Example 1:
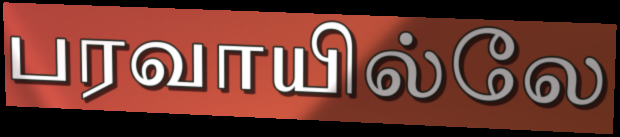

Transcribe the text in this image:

பரவாயில்லே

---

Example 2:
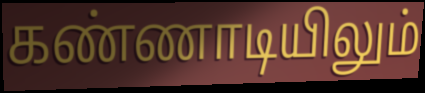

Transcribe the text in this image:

கண்ணாடியிலும்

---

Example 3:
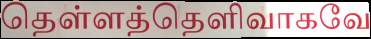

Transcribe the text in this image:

தெள்ளத்தெளிவாகவே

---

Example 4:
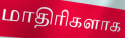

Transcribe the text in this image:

மாதிரிகளாக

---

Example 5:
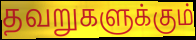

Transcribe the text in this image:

தவறுகளுக்கும்